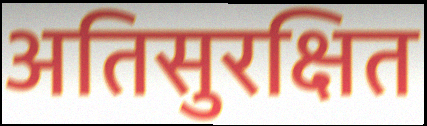
अतिसुरक्षित